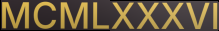
MCMLXXXVI